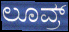
ಲೂವ್ರ್